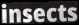
insects